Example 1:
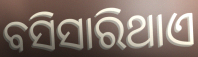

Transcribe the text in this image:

ବସିସାରିଥାଏ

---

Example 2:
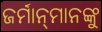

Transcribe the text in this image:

ଜର୍ମାନ୍‌ମାନଙ୍କୁ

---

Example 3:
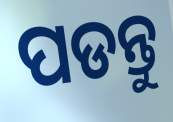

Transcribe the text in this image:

ପଡନ୍ତୁ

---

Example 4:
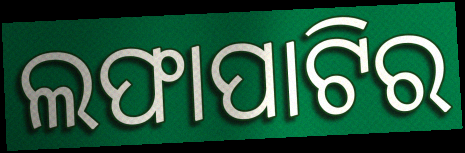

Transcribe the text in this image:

ଲଫାପାଟିର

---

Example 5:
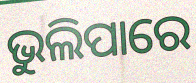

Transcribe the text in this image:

ଭୁଲିପାରେ